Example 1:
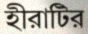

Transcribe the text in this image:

হীরাটির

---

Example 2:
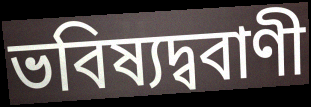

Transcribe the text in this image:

ভবিষ্যদ্ববাণী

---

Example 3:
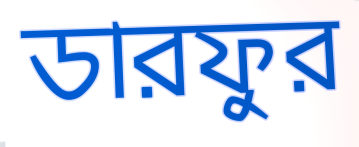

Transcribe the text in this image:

ডারফুর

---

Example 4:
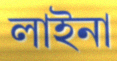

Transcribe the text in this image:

লাইনা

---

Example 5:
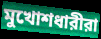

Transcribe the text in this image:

মুখোশধারীরা